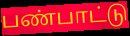
பண்பாட்டு